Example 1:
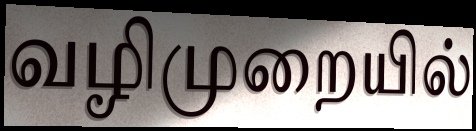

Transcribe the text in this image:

வழிமுறையில்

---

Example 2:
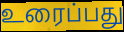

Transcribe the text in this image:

உரைப்பது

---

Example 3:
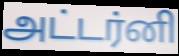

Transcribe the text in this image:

அட்டர்னி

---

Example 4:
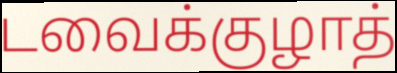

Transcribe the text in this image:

டவைக்குழாத்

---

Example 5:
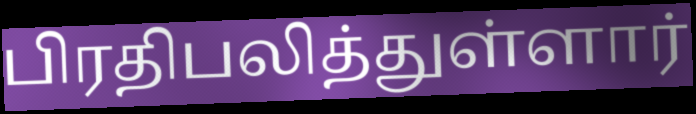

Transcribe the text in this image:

பிரதிபலித்துள்ளார்